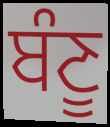
ਬੰਣੂ